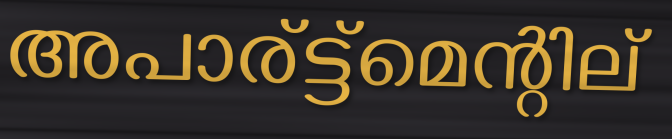
അപാര്ട്ട്മെന്റില്